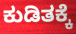
ಕುಡಿತಕ್ಕೆ